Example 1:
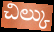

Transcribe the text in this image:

చిల్కు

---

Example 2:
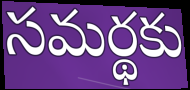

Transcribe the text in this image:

సమర్థకు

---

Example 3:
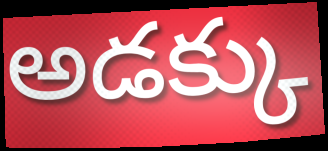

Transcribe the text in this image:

అడక్కు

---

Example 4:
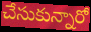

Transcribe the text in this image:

చేసుకున్నారో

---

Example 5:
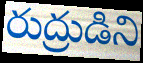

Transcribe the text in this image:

రుద్రుడిని